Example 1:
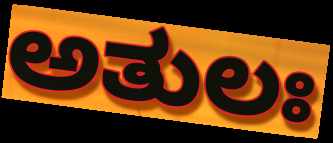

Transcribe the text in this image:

ಅತುಲಃ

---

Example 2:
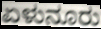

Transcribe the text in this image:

ಏಳುನೂರು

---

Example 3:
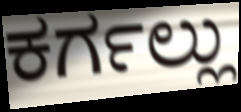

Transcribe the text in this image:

ಕರ್ಗಲ್ಲು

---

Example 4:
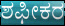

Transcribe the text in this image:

ಶಫೀಕರ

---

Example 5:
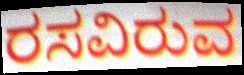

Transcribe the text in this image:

ರಸವಿರುವ